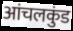
आंचलकुंड